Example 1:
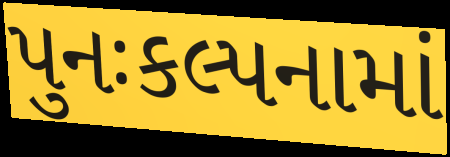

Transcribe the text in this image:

પુનઃકલ્પનામાં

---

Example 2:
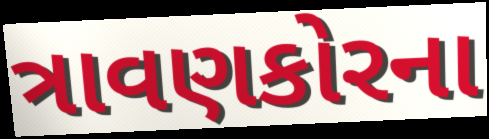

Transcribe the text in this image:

ત્રાવણકોરના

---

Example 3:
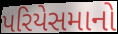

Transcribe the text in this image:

પરિયેસમાનો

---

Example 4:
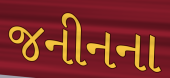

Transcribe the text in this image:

જનીનના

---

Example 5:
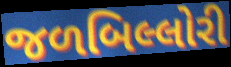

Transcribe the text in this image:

જળબિલ્લોરી